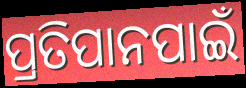
ପ୍ରତିପାନପାଇଁ